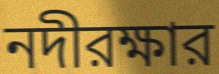
নদীরক্ষার